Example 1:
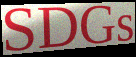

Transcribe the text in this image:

SDGs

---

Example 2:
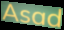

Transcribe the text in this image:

Asad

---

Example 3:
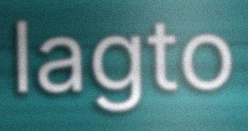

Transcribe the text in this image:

lagto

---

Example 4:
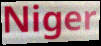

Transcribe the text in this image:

Niger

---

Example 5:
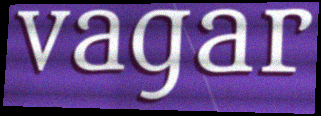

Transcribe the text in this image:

vagar